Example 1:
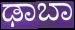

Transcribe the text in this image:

ಢಾಬಾ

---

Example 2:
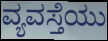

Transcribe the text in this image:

ವ್ಯವಸ್ತೆಯು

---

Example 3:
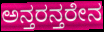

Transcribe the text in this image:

ಅನ್ತರನ್ತರೇನ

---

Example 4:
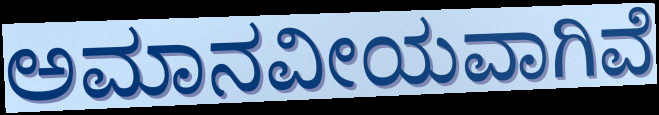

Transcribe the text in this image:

ಅಮಾನವೀಯವಾಗಿವೆ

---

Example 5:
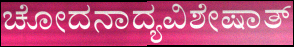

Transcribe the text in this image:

ಚೋದನಾದ್ಯವಿಶೇಷಾತ್